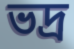
ভদ্ৰ